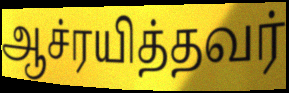
ஆச்ரயித்தவர்